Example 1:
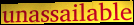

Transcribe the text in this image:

unassailable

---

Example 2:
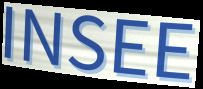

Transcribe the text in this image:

INSEE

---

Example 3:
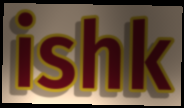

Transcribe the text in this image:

ishk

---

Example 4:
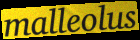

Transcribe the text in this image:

malleolus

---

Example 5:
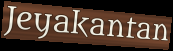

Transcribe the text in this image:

Jeyakantan